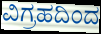
ವಿಗ್ರಹದಿಂದ